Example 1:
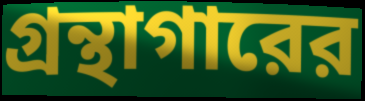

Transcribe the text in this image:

গ্রন্থাগারের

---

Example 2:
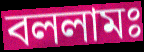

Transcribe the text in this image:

বললামঃ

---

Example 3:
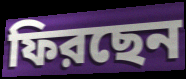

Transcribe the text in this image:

ফিরছেন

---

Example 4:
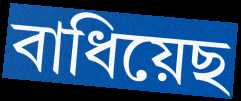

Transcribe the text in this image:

বাধিয়েছ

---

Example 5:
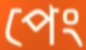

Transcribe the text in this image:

পেং